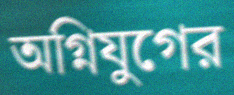
অগ্নিযুগের